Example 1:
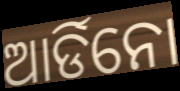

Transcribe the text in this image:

ଆର୍ଡିନୋ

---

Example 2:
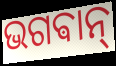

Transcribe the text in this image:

ଭଗଵାନ୍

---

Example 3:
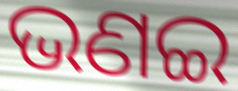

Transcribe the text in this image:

ଭଣଇ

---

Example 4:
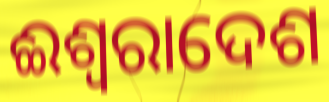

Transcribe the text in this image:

ଈଶ୍ୱରାଦେଶ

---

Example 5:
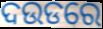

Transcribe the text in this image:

ଦଉଡରେ